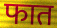
फात